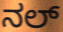
ನಲ್